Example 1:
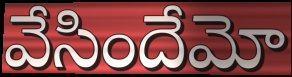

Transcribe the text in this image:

వేసిందేమో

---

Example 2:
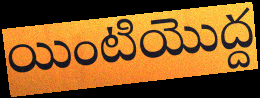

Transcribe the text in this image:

యింటియొద్ద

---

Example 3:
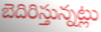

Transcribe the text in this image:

బెదిరిస్తున్నట్లు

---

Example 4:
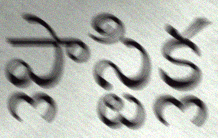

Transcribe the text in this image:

ప్లాస్టిక్ల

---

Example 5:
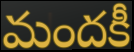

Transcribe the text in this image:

మందకీ